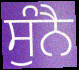
ਸੁੰਨੈ